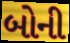
બોની